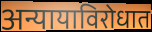
अन्यायाविरोधात